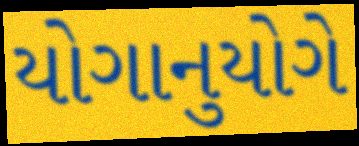
યોગાનુયોગે